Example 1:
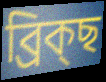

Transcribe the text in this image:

ব্ৰিক্‌ছ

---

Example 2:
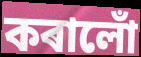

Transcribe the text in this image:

কৰালোঁ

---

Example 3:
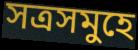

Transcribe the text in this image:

সত্ৰসমুহে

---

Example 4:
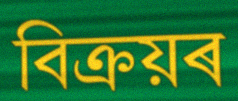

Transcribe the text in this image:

বিক্ৰয়ৰ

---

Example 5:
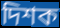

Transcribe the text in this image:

দিশক